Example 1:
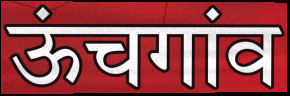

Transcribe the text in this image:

ऊंचगांव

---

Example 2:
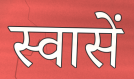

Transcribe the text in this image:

स्वासें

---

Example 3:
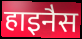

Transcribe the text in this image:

हाइनैस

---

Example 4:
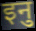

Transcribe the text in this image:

इनु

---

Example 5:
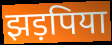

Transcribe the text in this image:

झड़पिया